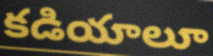
కడియాలూ